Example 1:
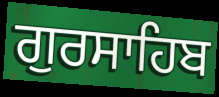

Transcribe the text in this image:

ਗੁਰਸਾਹਿਬ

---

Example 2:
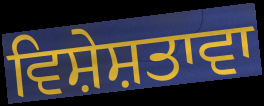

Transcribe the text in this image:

ਵਿਸ਼ੇਸ਼ਤਾਵਾ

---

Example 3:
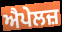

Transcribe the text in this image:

ਐਪੇਲਜ਼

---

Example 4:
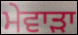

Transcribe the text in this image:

ਮੇਵਾੜਾ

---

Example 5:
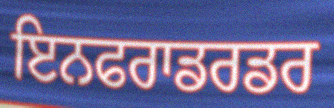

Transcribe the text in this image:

ਇਨਫਰਾਡਰਡਰ